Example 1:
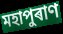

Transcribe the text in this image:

মহাপুৰাণ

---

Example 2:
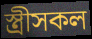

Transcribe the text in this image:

স্ত্ৰীসকল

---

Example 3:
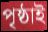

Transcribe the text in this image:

পৃষ্ঠাই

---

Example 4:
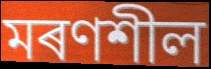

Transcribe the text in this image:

মৰণশীল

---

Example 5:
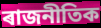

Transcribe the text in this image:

ৰাজনীতিক